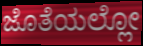
ಜೊತೆಯಲ್ಲೋ